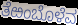
ತೆಱಂಬೊಳೆವ